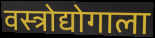
वस्त्रोद्योगाला